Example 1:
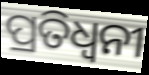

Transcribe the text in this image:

ପ୍ରତିଧ୍ଵନୀ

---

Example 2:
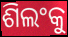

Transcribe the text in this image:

ଶିଲଂକୁ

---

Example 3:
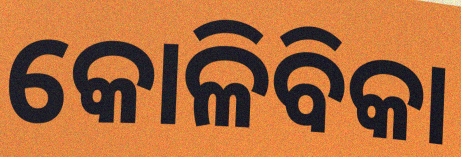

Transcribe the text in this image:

କୋଳିବିକା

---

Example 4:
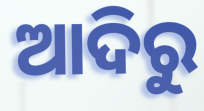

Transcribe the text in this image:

ଆଦିରୁ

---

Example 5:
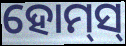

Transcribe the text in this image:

ହୋମ୍‌ସ୍